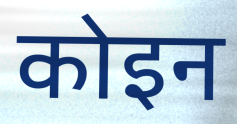
कोइन